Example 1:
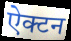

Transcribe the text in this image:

ऐक्टन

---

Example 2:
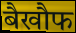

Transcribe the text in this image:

बैखौफ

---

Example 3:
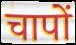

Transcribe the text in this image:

चापों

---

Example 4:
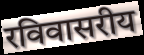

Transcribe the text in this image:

रविवासरीय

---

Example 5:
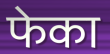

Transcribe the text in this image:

फेका